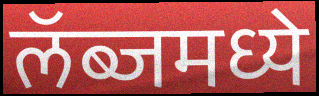
लॅब्जमध्ये